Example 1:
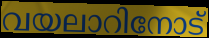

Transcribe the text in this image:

വയലാറിനോട്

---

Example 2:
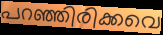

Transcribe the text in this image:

പറഞ്ഞിരിക്കവെ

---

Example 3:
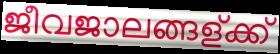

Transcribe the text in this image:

ജീവജാലങ്ങള്ക്ക്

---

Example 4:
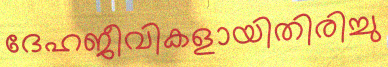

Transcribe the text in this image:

ദേഹജീവികളായിതിരിച്ചു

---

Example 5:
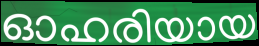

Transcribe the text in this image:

ഓഹരിയായ